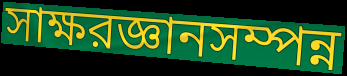
সাক্ষরজ্ঞানসম্পন্ন